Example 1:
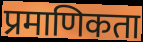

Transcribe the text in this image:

प्रमाणिकता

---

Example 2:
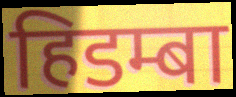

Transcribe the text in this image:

हिडम्बा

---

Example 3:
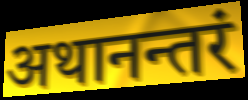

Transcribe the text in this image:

अथानन्तरं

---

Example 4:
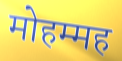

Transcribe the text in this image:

मोहम्मह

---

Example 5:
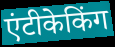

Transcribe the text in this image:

एंटीकेकिंग